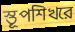
স্তূপশিখরে